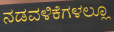
ನಡವಳಿಕೆಗಳಲ್ಲೂ